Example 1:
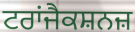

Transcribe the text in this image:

ਟਰਾਂਜੈਕਸ਼ਨਜ਼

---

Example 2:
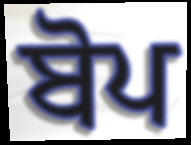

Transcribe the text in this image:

ਬੋਪ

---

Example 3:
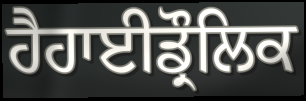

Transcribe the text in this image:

ਹੈਹਾਈਡ੍ਰੌਲਿਕ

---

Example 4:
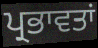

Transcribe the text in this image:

ਪ੍ਰਭਾਵਤਾਂ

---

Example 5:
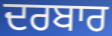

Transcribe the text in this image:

ਦਰਬਾਰ